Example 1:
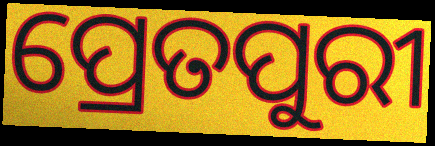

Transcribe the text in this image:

ପ୍ରେତପୁରୀ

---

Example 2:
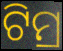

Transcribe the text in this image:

ଟିମ୍ର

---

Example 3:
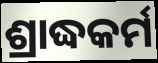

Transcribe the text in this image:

ଶ୍ରାଦ୍ଧକର୍ମ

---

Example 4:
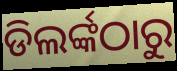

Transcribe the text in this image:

ଡିଲର୍ଙ୍କଠାରୁ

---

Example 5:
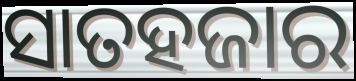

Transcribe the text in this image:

ସାତହଜାର